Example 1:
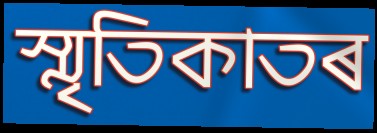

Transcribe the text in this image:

স্মৃতিকাতৰ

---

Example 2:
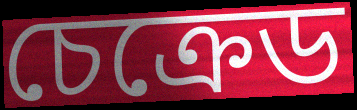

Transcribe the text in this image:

চেক্ৰেড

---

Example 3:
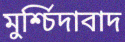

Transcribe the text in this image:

মুৰ্শ্চিদাবাদ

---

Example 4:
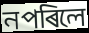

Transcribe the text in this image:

নপৰিলে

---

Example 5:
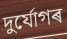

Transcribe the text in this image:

দুৰ্যোগৰ